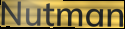
Nutman